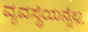
ವ್ಯವಸ್ಥೆಯನ್ನೆಲ್ಲ